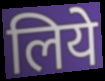
लिये